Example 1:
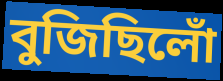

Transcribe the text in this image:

বুজিছিলোঁ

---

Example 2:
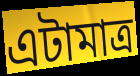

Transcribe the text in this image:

এটামাত্ৰ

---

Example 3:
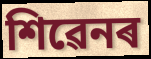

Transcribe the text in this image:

শিৱেনৰ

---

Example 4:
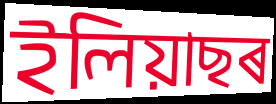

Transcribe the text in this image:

ইলিয়াছৰ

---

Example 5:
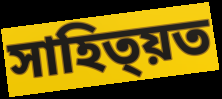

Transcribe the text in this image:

সাহিত্য়ত